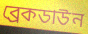
ব্রেকডাউন